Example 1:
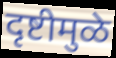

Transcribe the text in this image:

दृष्टीमुळे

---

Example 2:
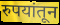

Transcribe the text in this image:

रुपयांतून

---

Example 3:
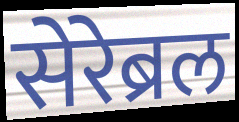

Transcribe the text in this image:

सेरेब्रल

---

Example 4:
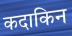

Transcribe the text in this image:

कदाकिन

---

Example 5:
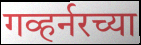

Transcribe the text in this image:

गव्हर्नरच्या